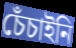
চেঁচাইনি